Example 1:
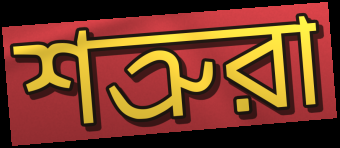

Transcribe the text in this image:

শত্রুরা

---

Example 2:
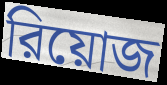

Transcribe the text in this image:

রিয়োজ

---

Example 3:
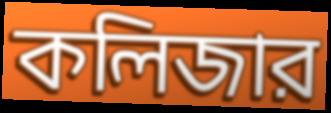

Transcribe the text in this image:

কলিজার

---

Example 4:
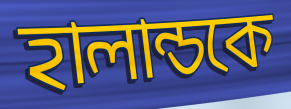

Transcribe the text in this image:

হালান্ডকে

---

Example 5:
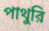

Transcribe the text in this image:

পাথুরি